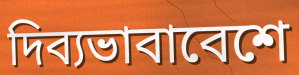
দিব্যভাবাবেশে